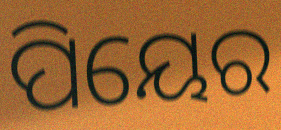
ପିୟେର